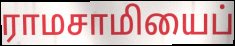
ராமசாமியைப்